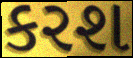
કરશ